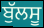
ਬੁੱਲਸੂ